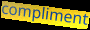
compliment